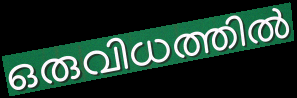
ഒരുവിധത്തിൽ